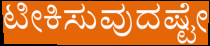
ಟೀಕಿಸುವುದಷ್ಟೇ